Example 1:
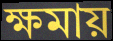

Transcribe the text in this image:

ক্ষমায়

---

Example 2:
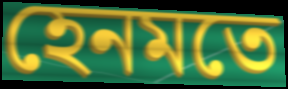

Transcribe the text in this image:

হেনমতে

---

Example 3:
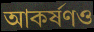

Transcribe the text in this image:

আকর্ষণও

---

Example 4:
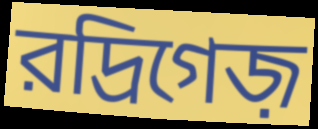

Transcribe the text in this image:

রদ্রিগেজ়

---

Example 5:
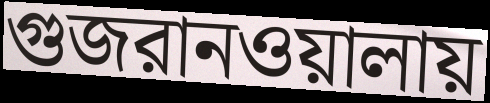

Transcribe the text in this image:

গুজরানওয়ালায়